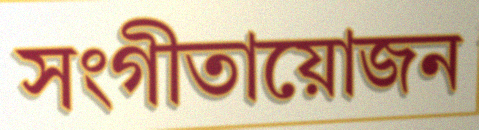
সংগীতায়োজন